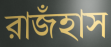
রাজঁহাস